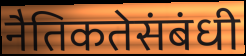
नैतिकतेसंबंधी